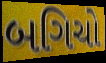
બગિચો